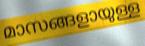
മാസങ്ങളായുള്ള